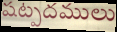
షట్పదములు